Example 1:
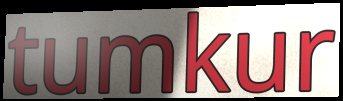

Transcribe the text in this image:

tumkur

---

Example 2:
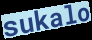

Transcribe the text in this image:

sukalo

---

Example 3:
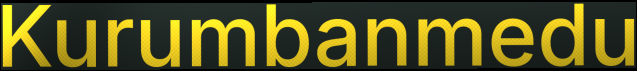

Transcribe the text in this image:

Kurumbanmedu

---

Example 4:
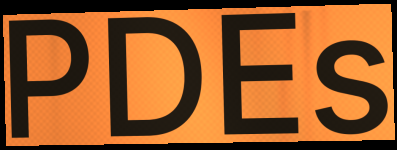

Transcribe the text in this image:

PDEs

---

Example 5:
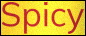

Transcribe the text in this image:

Spicy